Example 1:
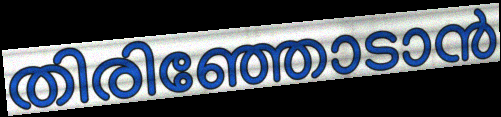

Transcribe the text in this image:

തിരിഞ്ഞോടാൻ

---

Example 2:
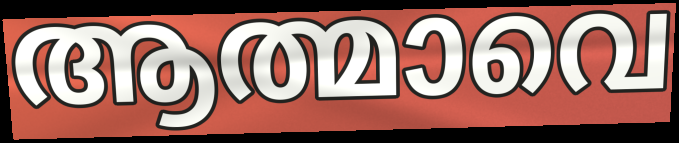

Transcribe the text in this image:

ആത്മാവെ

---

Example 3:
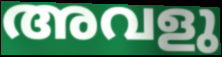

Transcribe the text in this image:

അവളു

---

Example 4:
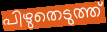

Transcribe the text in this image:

പിഴുതെടുത്ത്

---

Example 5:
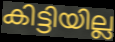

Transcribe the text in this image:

കിട്ടിയില്ല